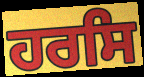
ਹਰਸਿ